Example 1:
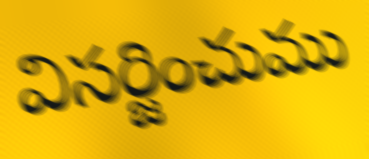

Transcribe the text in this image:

విసర్జించుము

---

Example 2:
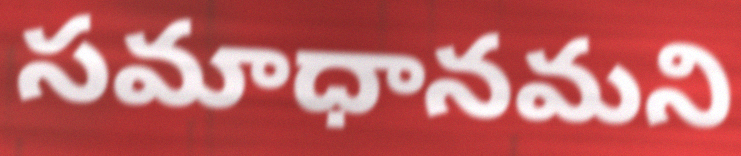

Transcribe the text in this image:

సమాధానమని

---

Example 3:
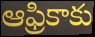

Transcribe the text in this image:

ఆఫ్రికాకు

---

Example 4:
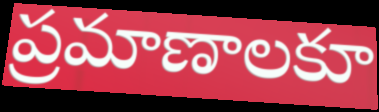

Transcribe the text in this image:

ప్రమాణాలకూ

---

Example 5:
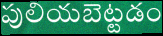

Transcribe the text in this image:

పులియబెట్టడం